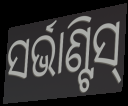
ସର୍ଭାଣ୍ଟିସ୍